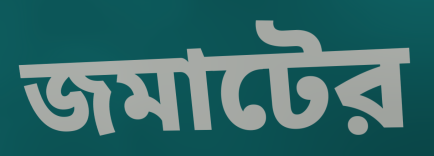
জমাটের